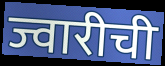
ज्वारीची